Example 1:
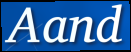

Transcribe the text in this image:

Aand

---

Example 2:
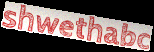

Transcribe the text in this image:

shwethabc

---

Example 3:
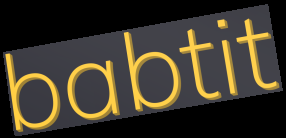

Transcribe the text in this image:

babtit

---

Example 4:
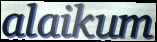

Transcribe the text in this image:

alaikum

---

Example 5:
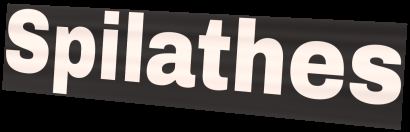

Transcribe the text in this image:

Spilathes